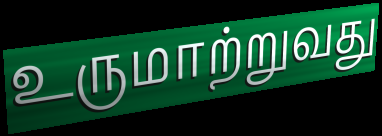
உருமாற்றுவது